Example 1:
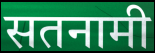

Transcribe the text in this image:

सतनामी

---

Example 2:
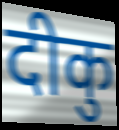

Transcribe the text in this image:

दीकु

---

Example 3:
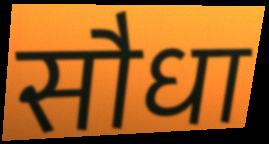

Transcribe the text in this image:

सौधा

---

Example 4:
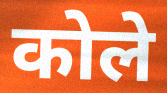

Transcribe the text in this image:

कोले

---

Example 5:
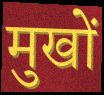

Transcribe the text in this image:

मुखों